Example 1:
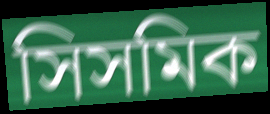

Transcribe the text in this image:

সিসমিক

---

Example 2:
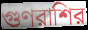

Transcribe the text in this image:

গুণরাশির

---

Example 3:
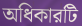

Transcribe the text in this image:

অধিকারটি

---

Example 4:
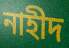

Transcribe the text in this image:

নাহীদ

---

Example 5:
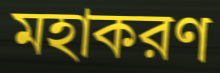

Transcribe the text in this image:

মহাকরণ